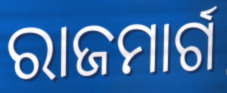
ରାଜମାର୍ଗ